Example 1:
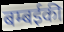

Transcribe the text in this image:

बम्बईकी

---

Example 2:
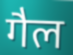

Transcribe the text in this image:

गैल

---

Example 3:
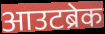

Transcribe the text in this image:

आउटब्रेक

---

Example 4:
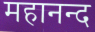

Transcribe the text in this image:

महानन्द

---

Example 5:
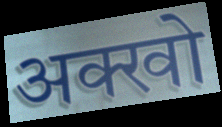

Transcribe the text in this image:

अक्खो